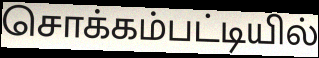
சொக்கம்பட்டியில்